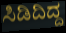
ಸಿಡಿದಿದ್ದ